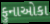
ફુનાઓકા